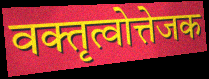
वक्तृत्वोत्तेजक